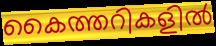
കൈത്തറികളിൽ